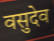
वसुदेव